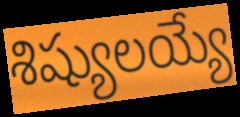
శిష్యులయ్యే